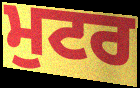
ਮੁਟਰ